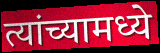
त्यांच्यामध्ये